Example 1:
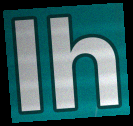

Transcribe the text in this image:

Ih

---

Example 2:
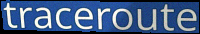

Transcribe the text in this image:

traceroute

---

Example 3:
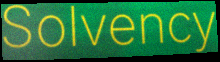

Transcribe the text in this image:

Solvency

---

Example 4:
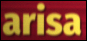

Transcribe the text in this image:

arisa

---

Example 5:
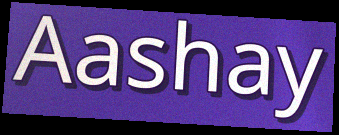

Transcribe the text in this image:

Aashay